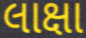
લાક્ષા